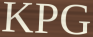
KPG